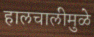
हालचालीमुळे